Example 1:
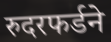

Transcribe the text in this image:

रुदरफर्डने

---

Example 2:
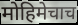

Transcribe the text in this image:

मोहिमेचाच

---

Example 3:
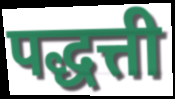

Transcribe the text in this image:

पद्धत्ती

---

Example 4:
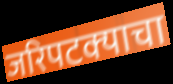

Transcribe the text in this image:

जरिपटक्याचा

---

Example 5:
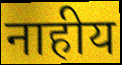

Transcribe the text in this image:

नाहीय